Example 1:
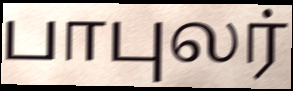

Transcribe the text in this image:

பாபுலர்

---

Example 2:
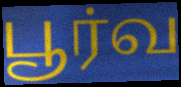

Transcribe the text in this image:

பூர்வ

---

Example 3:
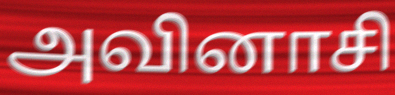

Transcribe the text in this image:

அவினாசி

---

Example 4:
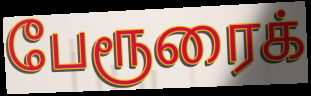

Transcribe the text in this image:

பேரூரைக்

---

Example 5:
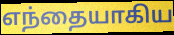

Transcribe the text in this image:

எந்தையாகிய